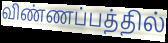
விண்ணப்பத்தில்